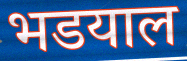
भडयाल